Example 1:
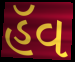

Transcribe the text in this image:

હૅવ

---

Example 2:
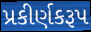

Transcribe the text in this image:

પ્રકીર્ણકરૂપ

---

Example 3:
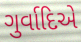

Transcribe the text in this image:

ગુર્વાદિએ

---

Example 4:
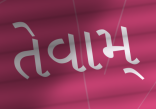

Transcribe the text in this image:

તેવામ્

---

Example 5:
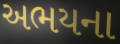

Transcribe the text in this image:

અભયના